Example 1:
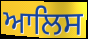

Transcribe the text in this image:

ਆਲਿਸ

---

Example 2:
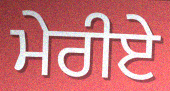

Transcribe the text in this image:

ਮੇਰੀਏ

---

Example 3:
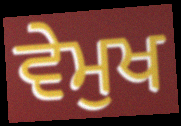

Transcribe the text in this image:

ਵੇਮੁਖ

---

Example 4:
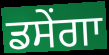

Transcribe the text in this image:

ਡਸੇਂਗਾ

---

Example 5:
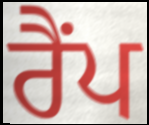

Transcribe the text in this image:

ਰੈਂਪ